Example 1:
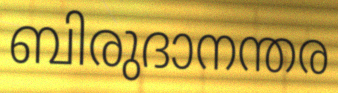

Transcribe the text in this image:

ബിരുദാനന്തര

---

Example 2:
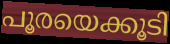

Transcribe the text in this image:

പൂരയെക്കൂടി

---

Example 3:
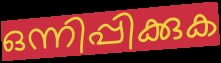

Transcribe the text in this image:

ഒന്നിപ്പിക്കുക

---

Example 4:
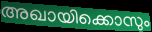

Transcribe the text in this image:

അഖായിക്കൊസും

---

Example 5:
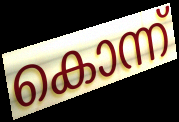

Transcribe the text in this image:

കൊന്ന്